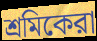
শ্রমিকেরা